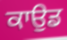
ਕਾਉਡ